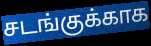
சடங்குக்காக